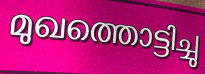
മുഖത്തൊട്ടിച്ചു